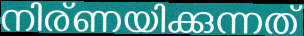
നിര്ണയിക്കുന്നത്